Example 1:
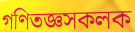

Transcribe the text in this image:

গণিতজ্ঞসকলক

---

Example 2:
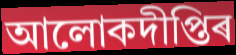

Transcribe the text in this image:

আলোকদীপ্তিৰ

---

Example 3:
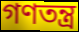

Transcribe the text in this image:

গণতন্ত্ৰ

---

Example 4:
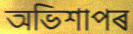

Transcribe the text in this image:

অভিশাপৰ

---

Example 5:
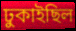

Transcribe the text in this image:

ঢুকাইছিল